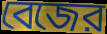
বেজের